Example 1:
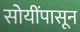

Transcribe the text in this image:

सोयींपासून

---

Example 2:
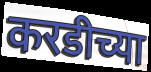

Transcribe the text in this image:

करडीच्या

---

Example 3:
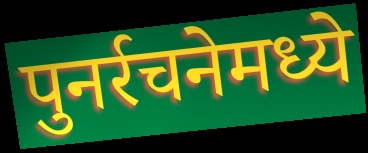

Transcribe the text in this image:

पुनर्रचनेमध्ये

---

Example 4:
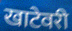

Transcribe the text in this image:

खाटेवरी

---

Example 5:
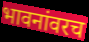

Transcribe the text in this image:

भावनांवरच